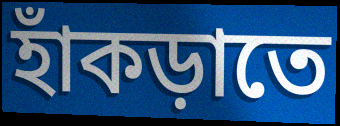
হাঁকড়াতে